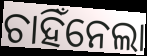
ଚାହିଁନେଲା